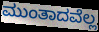
ಮುಂತಾದವೆಲ್ಲ